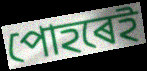
পোহৰেই